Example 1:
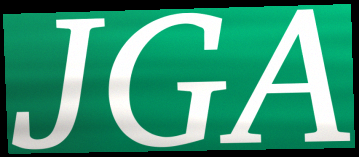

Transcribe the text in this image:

JGA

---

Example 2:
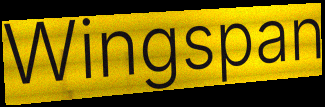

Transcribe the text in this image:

Wingspan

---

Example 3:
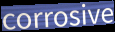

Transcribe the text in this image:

corrosive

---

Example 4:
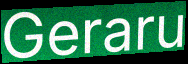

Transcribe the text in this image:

Geraru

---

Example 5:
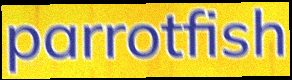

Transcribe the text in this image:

parrotfish